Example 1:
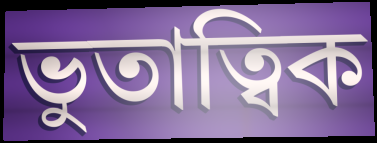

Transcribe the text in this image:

ভুতাত্বিক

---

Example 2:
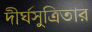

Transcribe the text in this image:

দীর্ঘসুত্রিতার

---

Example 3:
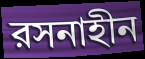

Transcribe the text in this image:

রসনাহীন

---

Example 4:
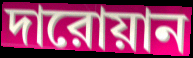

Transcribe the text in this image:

দারোয়ান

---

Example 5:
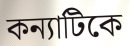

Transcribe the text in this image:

কন্যাটিকে